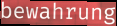
bewahrung